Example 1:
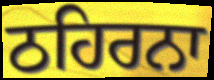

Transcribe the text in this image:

ਠਹਿਰਨਾ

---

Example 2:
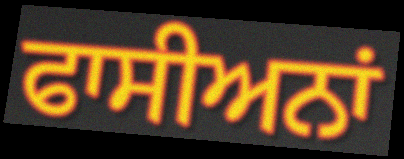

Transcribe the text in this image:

ਫਾਸੀਅਨਾਂ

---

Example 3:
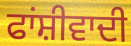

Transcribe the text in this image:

ਫਾਂਸ਼ੀਵਾਦੀ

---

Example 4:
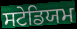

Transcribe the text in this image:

ਸਟੇਡਿਯਮ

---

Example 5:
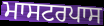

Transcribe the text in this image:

ਮਾਸਟਰਪਾਸ